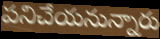
పనిచేయనున్నారు